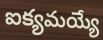
ఐక్యమయ్యే